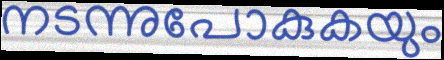
നടന്നുപോകുകയും